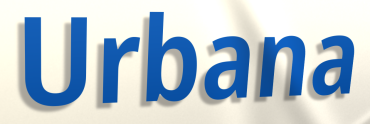
Urbana